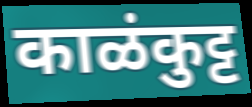
काळंकुट्ट